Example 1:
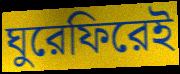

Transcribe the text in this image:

ঘুরেফিরেই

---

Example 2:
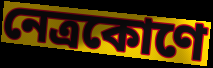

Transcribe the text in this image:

নেত্রকোণে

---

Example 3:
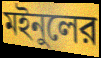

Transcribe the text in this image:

মইনুলের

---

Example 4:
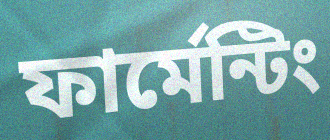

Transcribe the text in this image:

ফার্মেন্টিং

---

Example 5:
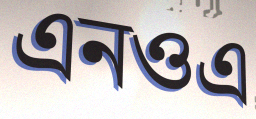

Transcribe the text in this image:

এনওএ